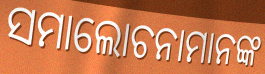
ସମାଲୋଚନାମାନଙ୍କ